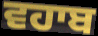
ਵਹਾਬ